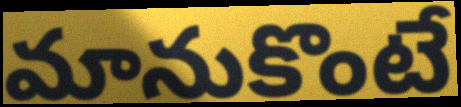
మానుకొంటే